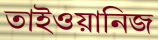
তাইওয়ানিজ